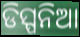
ଡିସ୍ପନିଆ